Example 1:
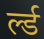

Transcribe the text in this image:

र्ल्ड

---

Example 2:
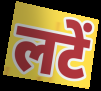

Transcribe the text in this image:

लटें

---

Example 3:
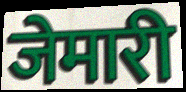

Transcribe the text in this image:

जेमारी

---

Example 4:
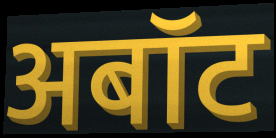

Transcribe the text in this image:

अबॉट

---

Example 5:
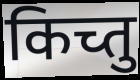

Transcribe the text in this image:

किच्तु